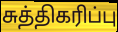
சுத்திகரிப்பு